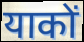
याकों